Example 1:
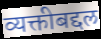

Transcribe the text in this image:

व्यक्तीबद्दल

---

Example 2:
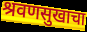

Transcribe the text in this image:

श्रवणसुखाचा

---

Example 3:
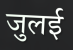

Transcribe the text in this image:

जुलई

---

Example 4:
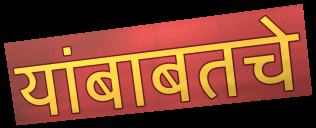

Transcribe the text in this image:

यांबाबतचे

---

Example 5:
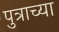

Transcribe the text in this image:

पुत्राच्या